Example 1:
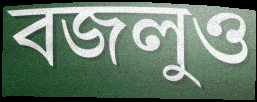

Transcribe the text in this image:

বজলুও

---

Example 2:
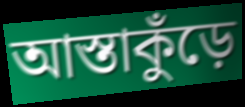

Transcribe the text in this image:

আস্তাকুঁড়ে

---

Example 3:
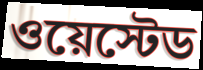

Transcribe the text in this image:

ওয়েস্টেড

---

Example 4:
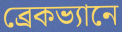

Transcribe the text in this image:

ব্রেকভ্যানে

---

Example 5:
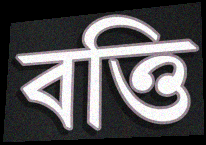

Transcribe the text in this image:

বত্তি